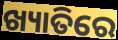
ଖ୍ୟାତିରେ